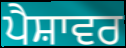
ਪੈਸ਼ਾਵਰ